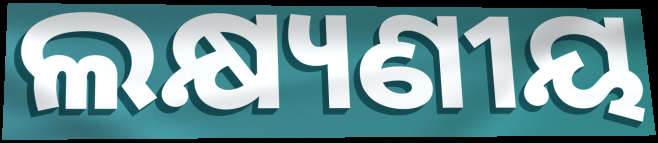
ଲକ୍ଷ୍ୟଣୀୟ